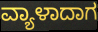
ವ್ಯಾಳಾದಾಗ